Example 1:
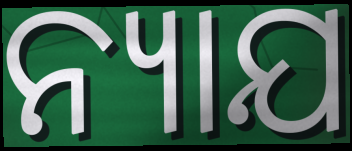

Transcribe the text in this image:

ନ୍ୟାଯ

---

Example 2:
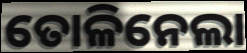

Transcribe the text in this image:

ତୋଳିନେଲା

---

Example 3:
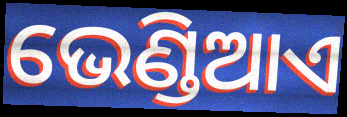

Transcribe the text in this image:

ଭେଣ୍ଡିଆଏ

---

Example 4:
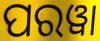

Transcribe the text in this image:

ପରୱା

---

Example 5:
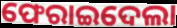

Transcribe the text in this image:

ଫେରାଇଦେଲା